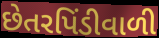
છેતરપિંડીવાળી